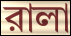
রালা